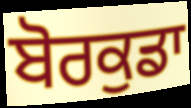
ਬੋਰਕੁਡਾ